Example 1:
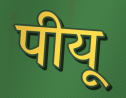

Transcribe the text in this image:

पीयू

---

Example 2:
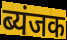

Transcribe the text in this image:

ब्यंजक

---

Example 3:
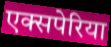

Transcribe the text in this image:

एक्सपेरिया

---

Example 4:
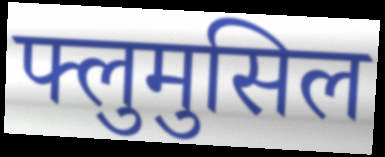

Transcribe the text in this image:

फ्लुमुसिल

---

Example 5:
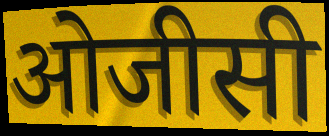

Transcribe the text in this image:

ओजीसी